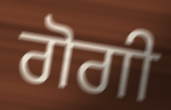
ਗੋਗੀ